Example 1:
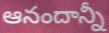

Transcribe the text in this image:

ఆనందాన్నీ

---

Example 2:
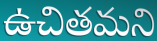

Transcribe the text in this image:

ఉచితమని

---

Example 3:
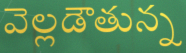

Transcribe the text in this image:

వెల్లడౌతున్న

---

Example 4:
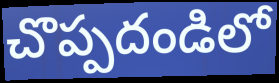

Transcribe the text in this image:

చొప్పదండిలో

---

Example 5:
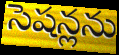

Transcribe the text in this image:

సెషన్లను